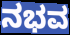
ನಭವ